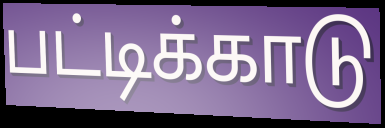
பட்டிக்காடு